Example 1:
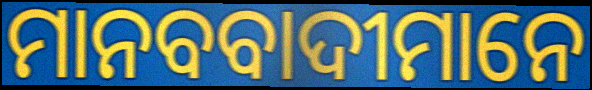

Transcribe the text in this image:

ମାନବବାଦୀମାନେ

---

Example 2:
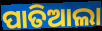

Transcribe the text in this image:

ପାତିଆଲା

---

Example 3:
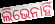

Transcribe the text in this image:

ଲିଭେନାହିଁ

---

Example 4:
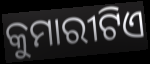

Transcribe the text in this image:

କୁମାରୀଟିଏ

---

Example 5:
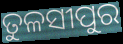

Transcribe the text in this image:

ତୁଳସୀପୁର